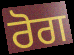
ਰੋਗ